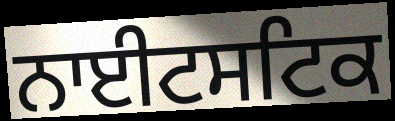
ਨਾਈਟਸਟਿਕ